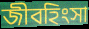
জীবহিংসা